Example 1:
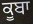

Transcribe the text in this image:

ਕੂਬਾ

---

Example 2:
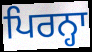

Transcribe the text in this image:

ਪਿਰਨ੍ਹਾ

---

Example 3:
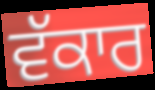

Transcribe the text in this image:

ਵੱਕਾਰ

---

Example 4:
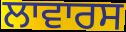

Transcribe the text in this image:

ਲਾਵਾਰਸ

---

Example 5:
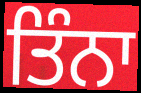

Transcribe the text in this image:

ਤਿੰਨਾ